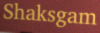
Shaksgam